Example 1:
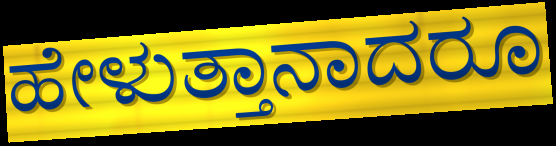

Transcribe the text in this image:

ಹೇಳುತ್ತಾನಾದರೂ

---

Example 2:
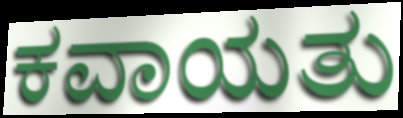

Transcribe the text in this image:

ಕವಾಯತು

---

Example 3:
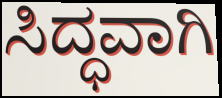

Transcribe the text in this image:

ಸಿದ್ಧವಾಗಿ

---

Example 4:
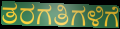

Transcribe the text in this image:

ತರಗತಿಗಳಿಗೆ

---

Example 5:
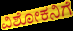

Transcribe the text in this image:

ವಿಶೋಕನಿಗೆ